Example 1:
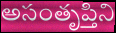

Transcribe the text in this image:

అసంతృప్తిని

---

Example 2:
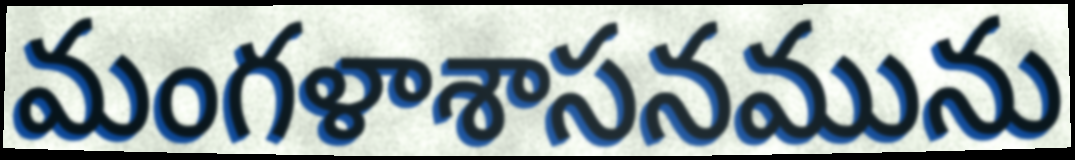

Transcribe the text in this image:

మంగళాశాసనమును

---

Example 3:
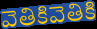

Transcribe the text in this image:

వెతికివెతికి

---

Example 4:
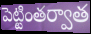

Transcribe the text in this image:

పెట్టింతర్వాత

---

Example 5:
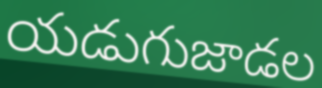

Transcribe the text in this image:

యడుగుజాడల